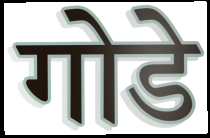
गोडे